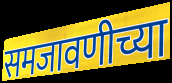
समजावणीच्या